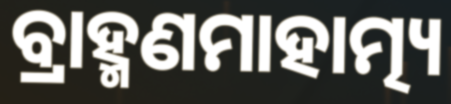
ବ୍ରାହ୍ମଣମାହାତ୍ମ୍ୟ